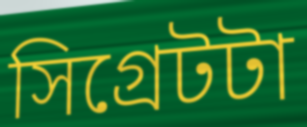
সিগ্রেটটা